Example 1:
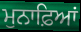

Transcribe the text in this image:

ਮੁਨਾਫ਼ਿਆਂ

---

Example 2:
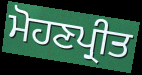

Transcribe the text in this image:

ਮੋਹਣਪ੍ਰੀਤ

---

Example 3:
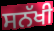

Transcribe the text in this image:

ਸਨੱਖੀ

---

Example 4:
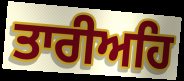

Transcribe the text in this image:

ਤਾਰੀਅਹਿ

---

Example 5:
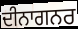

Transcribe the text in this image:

ਦੀਨਾਗਨਰ